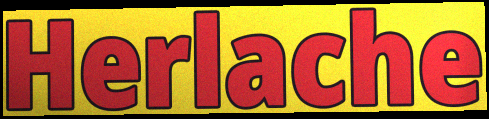
Herlache